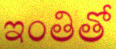
ఇంతితో